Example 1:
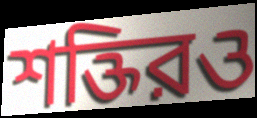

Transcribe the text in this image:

শক্তিরও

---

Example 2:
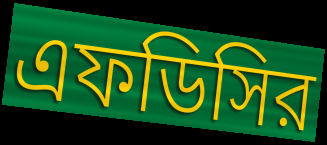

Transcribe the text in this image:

এফডিসির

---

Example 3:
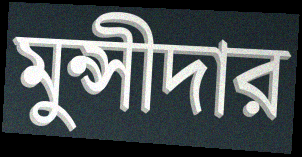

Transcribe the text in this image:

মুন্সীদার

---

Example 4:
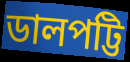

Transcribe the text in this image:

ডালপট্টি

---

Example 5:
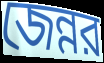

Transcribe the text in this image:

জেন্নর